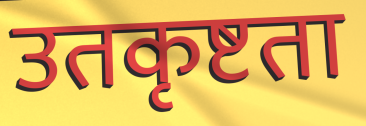
उतकृष्टता